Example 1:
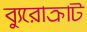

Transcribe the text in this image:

ব্যুরোক্রাট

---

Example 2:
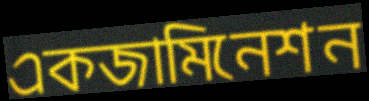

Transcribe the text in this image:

একজামিনেশন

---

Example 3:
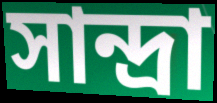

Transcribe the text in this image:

সান্দ্রা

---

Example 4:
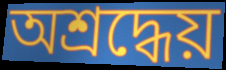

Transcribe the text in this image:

অশ্রদ্ধেয়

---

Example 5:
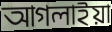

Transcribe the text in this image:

আগলাইয়া